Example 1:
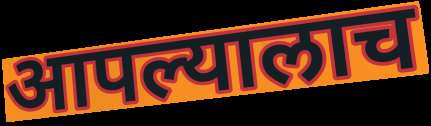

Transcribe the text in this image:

आपल्यालाच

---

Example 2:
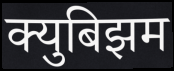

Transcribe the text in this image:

क्युबिझम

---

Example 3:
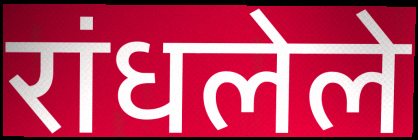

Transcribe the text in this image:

रांधलेले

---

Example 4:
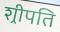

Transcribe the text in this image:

श्रीपति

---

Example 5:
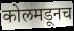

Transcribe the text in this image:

कोलमडूनच